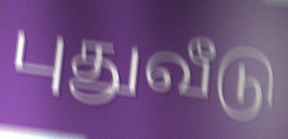
புதுவீடு